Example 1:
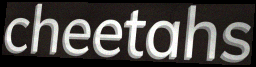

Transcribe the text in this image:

cheetahs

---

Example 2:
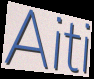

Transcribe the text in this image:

Aiti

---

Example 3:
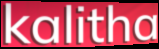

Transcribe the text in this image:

kalitha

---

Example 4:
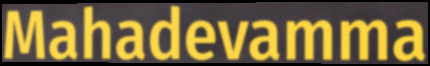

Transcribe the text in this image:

Mahadevamma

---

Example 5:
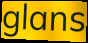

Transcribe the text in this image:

glans